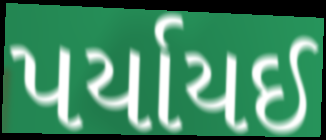
પર્યાયઈ